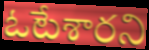
ఓటేశారని